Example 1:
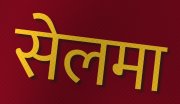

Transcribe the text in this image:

सेलमा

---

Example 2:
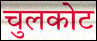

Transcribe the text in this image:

चुलकोट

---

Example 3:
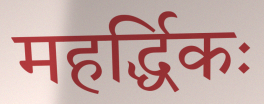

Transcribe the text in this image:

महर्द्धिकः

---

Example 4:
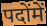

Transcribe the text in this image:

पदोंमें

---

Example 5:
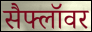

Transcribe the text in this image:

सैफ्लॉवर